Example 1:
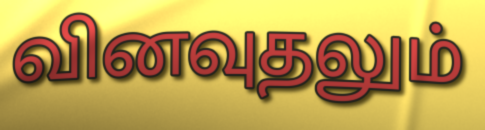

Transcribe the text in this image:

வினவுதலும்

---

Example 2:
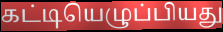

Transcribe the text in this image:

கட்டியெழுப்பியது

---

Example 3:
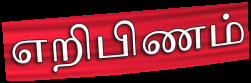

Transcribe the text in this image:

எறிபிணம்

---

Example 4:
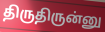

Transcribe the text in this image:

திருதிருன்னு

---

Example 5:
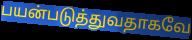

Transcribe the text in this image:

பயன்படுத்துவதாகவே